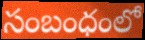
సంబంధంలో